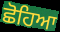
ਛੋਹਿਆ